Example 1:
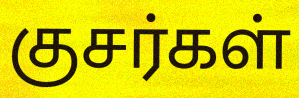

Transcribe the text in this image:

குசர்கள்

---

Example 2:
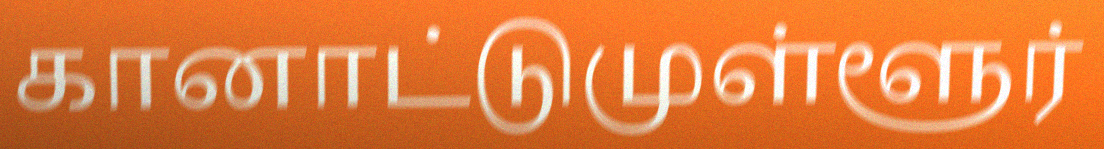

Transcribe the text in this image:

கானாட்டுமுள்ளூர்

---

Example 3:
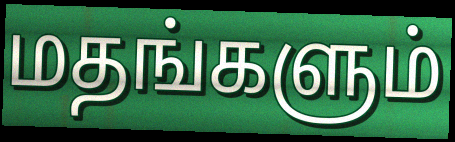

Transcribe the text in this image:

மதங்களும்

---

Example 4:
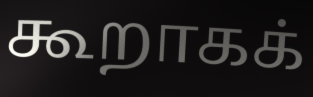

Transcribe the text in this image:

கூறாகக்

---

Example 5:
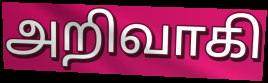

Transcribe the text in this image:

அறிவாகி